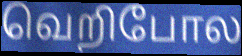
வெறிபோல